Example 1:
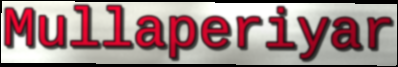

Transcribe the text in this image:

Mullaperiyar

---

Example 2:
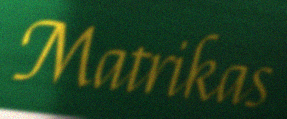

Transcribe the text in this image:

Matrikas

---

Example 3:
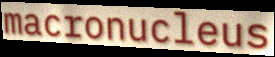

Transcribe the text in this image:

macronucleus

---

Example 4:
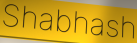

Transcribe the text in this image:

Shabhash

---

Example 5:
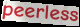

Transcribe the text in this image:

peerless